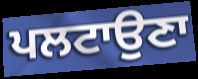
ਪਲਟਾਉਣਾ